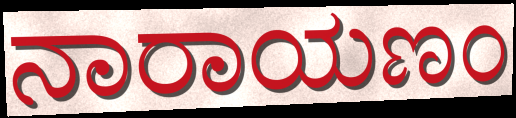
ನಾರಾಯಣಂ